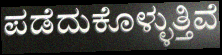
ಪಡೆದುಕೊಳ್ಳುತ್ತಿವೆ